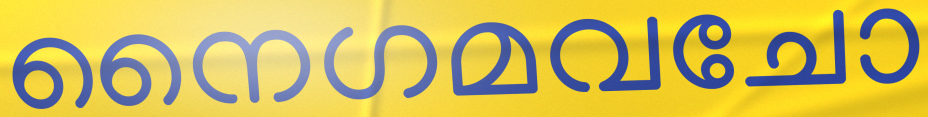
നൈഗമവചോ